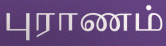
புராணம்